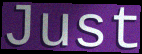
Just